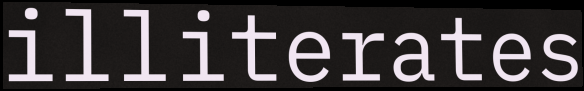
illiterates